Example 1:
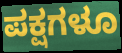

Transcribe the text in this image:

ಪಕ್ಷಗಳೂ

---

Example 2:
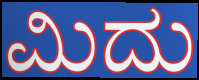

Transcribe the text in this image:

ಮಿದು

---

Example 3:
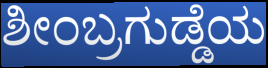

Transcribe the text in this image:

ಶೀಂಬ್ರಗುಡ್ಡೆಯ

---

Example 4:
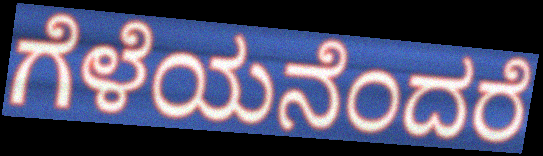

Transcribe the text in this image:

ಗೆಳೆಯನೆಂದರೆ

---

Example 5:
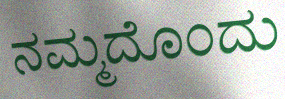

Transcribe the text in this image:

ನಮ್ಮದೊಂದು